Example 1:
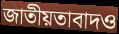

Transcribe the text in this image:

জাতীয়তাবাদও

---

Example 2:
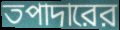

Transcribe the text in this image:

তপাদারের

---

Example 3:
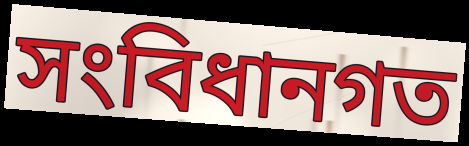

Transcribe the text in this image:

সংবিধানগত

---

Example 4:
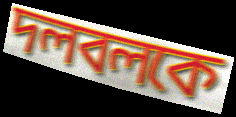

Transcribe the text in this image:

দলবলকে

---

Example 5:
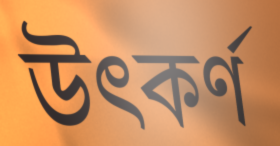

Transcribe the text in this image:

উৎকর্ণ